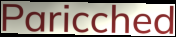
Paricched